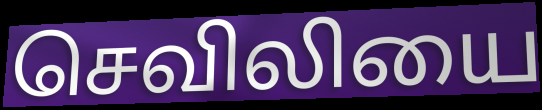
செவிலியை